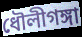
ধৌলীগঙ্গা